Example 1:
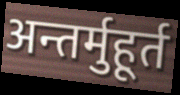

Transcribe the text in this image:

अन्तर्मुहूर्त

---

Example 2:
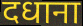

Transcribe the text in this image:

दधाना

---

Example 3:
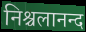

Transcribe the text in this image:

निश्चलानन्द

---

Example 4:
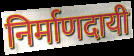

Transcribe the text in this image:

निर्माणदायी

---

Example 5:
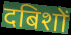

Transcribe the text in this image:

दबिशों